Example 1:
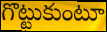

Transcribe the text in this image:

గొట్టుకుంటూ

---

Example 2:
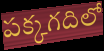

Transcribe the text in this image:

పక్కగదిలో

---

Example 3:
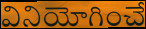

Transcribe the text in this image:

వినియోగించే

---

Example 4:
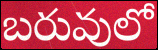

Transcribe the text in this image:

బరువులో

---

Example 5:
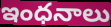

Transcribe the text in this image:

ఇంధనాలు